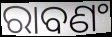
ରାବଣଂ